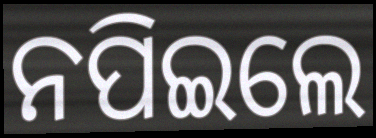
ନପିଇଲେ